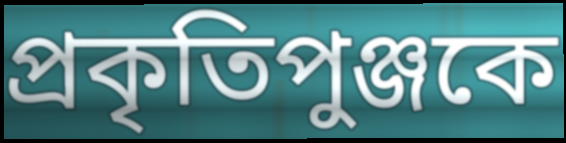
প্রকৃতিপুঞ্জকে